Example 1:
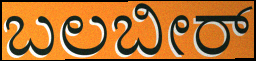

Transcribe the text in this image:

ಬಲಬೀರ್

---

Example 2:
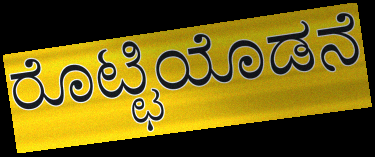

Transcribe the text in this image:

ರೊಟ್ಟಿಯೊಡನೆ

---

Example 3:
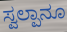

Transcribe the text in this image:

ಸ್ವಲ್ಪಾನೂ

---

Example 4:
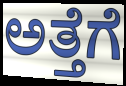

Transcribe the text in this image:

ಅತ್ತೆಗೆ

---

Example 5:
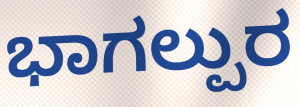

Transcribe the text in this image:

ಭಾಗಲ್ಪುರ